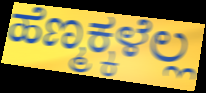
ಹೆಣ್ಮಕ್ಕಳೆಲ್ಲ